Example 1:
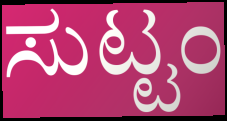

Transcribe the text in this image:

ಸುಟ್ಟಂ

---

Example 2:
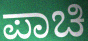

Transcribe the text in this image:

ಪಾಚಿ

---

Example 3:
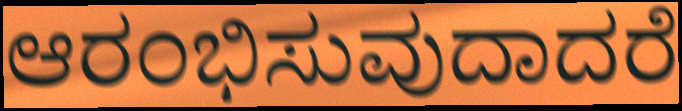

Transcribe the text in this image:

ಆರಂಭಿಸುವುದಾದರೆ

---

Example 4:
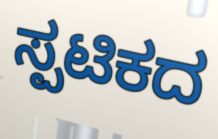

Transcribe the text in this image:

ಸ್ಪಟಿಕದ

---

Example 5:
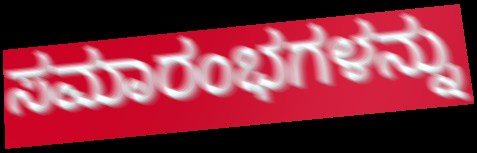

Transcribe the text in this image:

ಸಮಾರಂಭಗಳನ್ನು